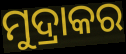
ମୁଦ୍ରାକର